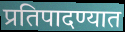
प्रतिपादण्यात